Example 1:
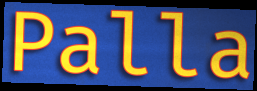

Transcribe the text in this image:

Palla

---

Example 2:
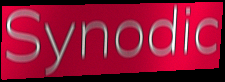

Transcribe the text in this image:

Synodic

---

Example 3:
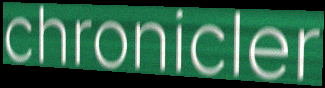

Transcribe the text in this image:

chronicler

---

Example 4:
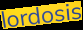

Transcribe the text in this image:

lordosis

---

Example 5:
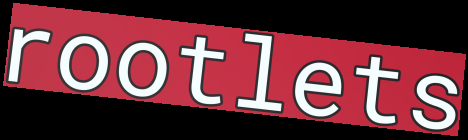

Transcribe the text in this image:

rootlets